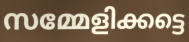
സമ്മേളിക്കട്ടെ